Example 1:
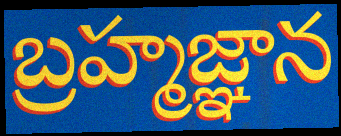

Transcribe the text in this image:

బ్రహ్మజ్ఞాన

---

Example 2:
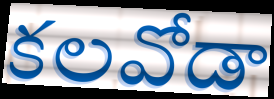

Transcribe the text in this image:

కలవోడా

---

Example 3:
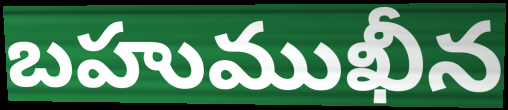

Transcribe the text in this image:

బహుముఖీన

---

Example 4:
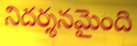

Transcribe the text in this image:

నిదర్శనమైంది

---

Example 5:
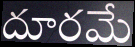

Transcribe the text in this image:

దూరమే